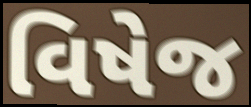
વિષેજ